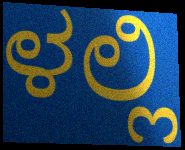
ಳಲ್ಲಿ